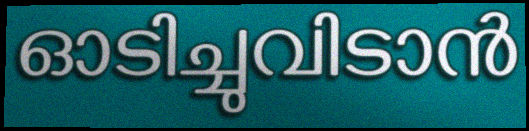
ഓടിച്ചുവിടാൻ